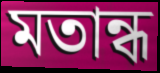
মতান্ধ